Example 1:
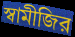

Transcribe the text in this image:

স্বামীজির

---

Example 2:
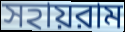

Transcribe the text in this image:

সহায়রাম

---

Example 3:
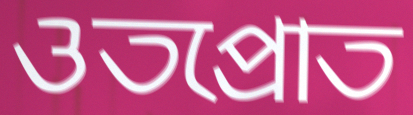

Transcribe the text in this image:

ওতপ্রোত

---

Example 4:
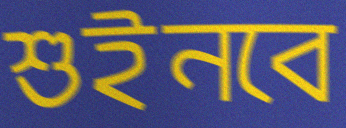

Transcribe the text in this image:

শুইনবে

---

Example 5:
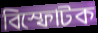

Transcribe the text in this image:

বিস্ফোটক